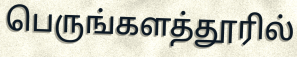
பெருங்களத்தூரில்